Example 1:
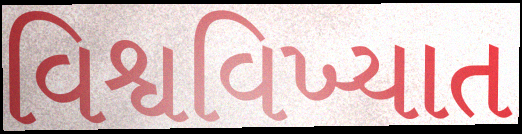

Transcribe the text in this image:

વિશ્વવિખ્યાત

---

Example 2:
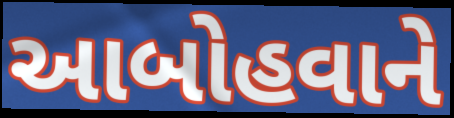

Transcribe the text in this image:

આબોહવાને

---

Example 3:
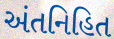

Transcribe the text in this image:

અંતનિહિત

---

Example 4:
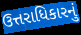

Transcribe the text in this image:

ઉત્તરાધિકારનું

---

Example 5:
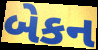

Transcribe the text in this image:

બેકન